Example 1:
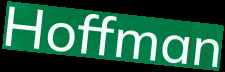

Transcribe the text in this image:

Hoffman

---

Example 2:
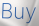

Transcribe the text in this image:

Buy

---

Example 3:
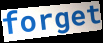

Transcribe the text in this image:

forget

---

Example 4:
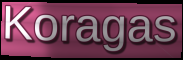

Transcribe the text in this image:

Koragas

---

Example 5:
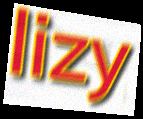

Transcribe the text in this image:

lizy